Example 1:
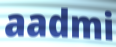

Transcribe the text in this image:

aadmi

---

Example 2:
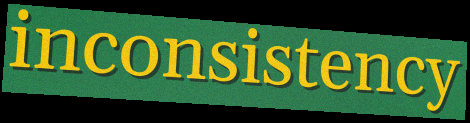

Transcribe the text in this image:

inconsistency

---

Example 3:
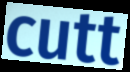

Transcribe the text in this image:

cutt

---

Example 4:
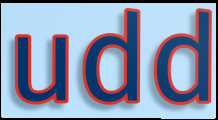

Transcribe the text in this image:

udd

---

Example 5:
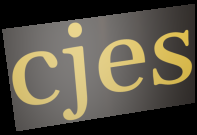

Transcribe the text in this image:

cjes